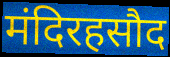
मंदिरहसौद